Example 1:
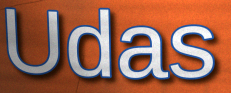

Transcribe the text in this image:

Udas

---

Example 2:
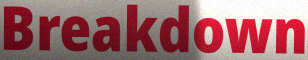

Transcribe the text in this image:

Breakdown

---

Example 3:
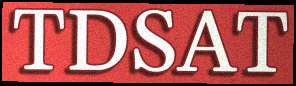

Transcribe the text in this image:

TDSAT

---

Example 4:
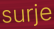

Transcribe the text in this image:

surje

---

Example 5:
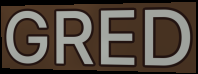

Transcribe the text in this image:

GRED